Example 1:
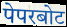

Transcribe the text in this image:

पेपरबोट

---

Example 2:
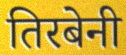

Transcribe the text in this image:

तिरबेनी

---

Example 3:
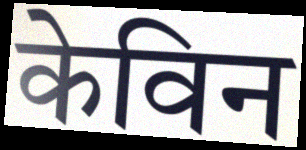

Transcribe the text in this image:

केविन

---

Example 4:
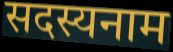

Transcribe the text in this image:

सदस्यनाम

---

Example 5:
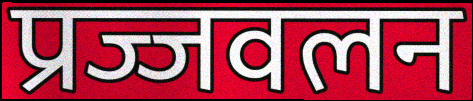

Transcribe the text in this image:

प्रज्‍जवलन